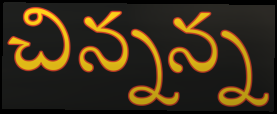
చిన్నన్న